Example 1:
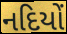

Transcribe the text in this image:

નદિયોં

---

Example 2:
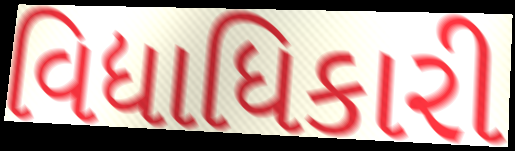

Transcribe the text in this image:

વિદ્યાધિકારી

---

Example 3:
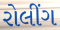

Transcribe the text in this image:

રોલીંગ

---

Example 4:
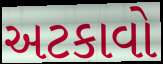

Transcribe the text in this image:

અટકાવો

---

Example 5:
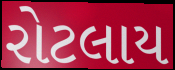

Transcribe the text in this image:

રોટલાય